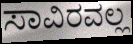
ಸಾವಿರವಲ್ಲ